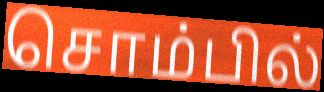
சொம்பில்